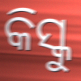
କିସ୍କୁ